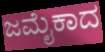
ಜಮೈಕಾದ